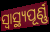
ସ୍ବାସ୍ଥ୍ୟପୂର୍ଣ୍ଣ